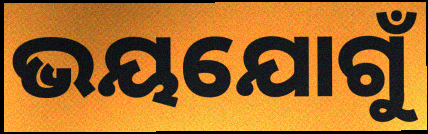
ଭୟଯୋଗୁଁ